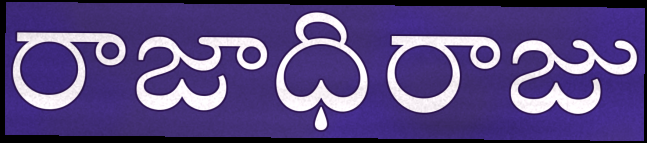
రాజాధిరాజు